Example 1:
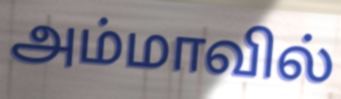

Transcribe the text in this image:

அம்மாவில்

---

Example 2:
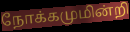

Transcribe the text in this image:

நோக்கமுமின்றி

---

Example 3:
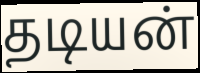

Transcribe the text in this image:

தடியன்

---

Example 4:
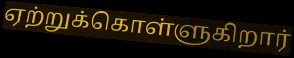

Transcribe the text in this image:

ஏற்றுக்கொள்ளுகிறார்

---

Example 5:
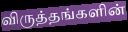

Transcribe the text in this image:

விருத்தங்களின்